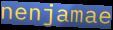
nenjamae